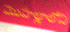
మొహల్లాలోని